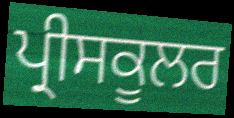
ਪ੍ਰੀਸਕੂਲਰ